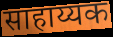
साहाय्यक